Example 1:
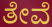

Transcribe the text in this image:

ತೇವೆ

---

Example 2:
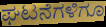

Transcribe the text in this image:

ಘಟನೆಗಳಿಗೂ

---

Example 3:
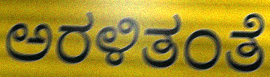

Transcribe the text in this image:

ಅರಳಿತಂತೆ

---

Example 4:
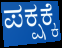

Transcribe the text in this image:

ಪಕ್ಷಕ್ಕೆ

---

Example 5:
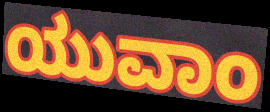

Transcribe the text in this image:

ಯುವಾಂ